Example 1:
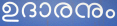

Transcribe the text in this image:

ഉദാരനും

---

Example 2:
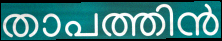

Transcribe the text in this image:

താപത്തിൻ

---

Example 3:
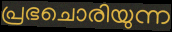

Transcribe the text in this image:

പ്രഭചൊരിയുന്ന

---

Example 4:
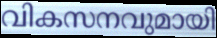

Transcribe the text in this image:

വികസനവുമായി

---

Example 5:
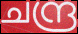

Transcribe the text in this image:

ചന്ദ്ര